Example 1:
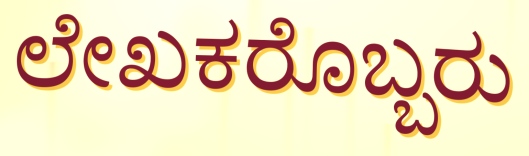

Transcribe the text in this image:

ಲೇಖಕರೊಬ್ಬರು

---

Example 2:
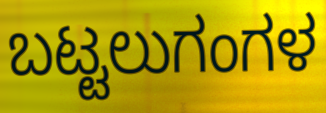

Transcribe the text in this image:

ಬಟ್ಟಲುಗಂಗಳ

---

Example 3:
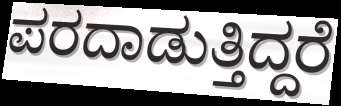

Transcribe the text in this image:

ಪರದಾಡುತ್ತಿದ್ದರೆ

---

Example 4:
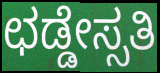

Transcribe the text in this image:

ಛಡ್ಡೇಸ್ಸತಿ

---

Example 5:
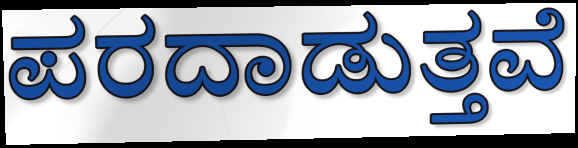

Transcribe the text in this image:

ಪರದಾಡುತ್ತವೆ